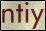
ntiy